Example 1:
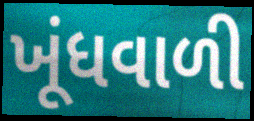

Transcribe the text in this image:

ખૂંધવાળી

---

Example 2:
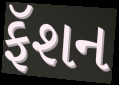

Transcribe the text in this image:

ફૅશન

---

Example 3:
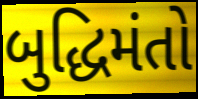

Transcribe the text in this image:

બુદ્ધિમંતો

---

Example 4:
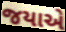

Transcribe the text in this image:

જયાએ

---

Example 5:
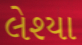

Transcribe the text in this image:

લેશ્યા